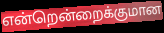
என்றென்றைக்குமான